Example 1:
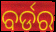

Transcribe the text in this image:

ବର୍ଡର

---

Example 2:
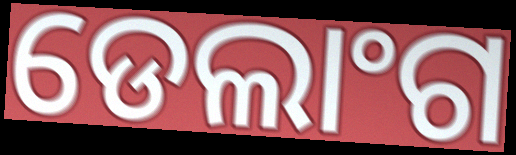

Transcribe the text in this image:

ଡେଲାଂଗ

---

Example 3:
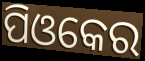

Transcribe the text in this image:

ପିଓକେର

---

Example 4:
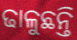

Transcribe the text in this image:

ଢାଳୁଛନ୍ତି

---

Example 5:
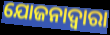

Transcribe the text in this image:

ଯୋଜନାଦ୍ବାରା